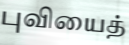
புவியைத்